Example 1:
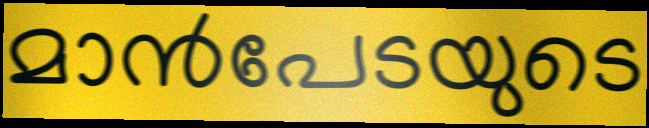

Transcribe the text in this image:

മാൻപേടയുടെ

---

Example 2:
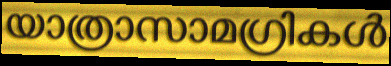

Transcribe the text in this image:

യാത്രാസാമഗ്രികൾ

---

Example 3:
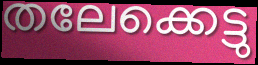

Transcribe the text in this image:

തലേക്കെട്ടു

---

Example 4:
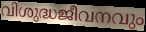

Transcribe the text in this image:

വിശുദ്ധജീവനവും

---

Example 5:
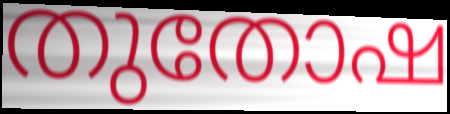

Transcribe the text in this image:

തുതോഷ